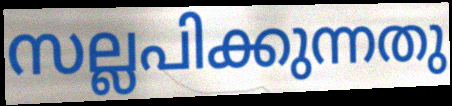
സല്ലപിക്കുന്നതു